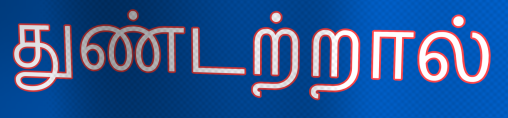
துண்டற்றால்